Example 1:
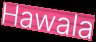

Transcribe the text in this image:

Hawala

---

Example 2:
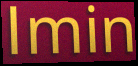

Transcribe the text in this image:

Imin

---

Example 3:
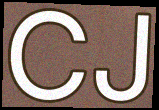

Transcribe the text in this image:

CJ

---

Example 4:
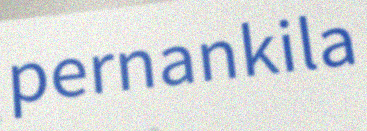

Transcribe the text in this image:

pernankila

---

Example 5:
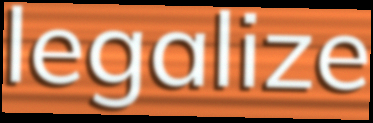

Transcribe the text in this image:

legalize